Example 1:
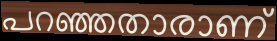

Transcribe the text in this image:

പറഞ്ഞതാരാണ്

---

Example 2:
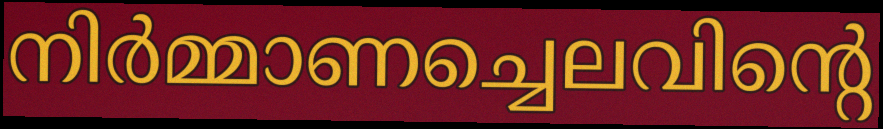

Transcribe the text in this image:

നിർമ്മാണച്ചെലവിന്റെ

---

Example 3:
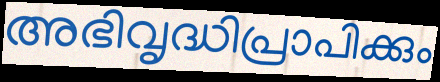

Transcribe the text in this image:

അഭിവൃദ്ധിപ്രാപിക്കും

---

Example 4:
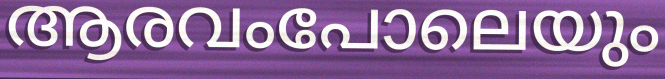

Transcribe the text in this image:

ആരവംപോലെയും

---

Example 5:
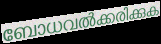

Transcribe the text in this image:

ബോധവൽക്കരിക്കുക